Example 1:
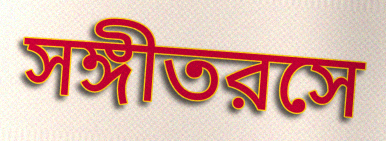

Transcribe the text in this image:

সঙ্গীতরসে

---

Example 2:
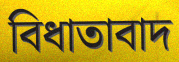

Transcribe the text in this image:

বিধাতাবাদ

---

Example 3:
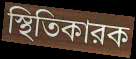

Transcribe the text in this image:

স্থিতিকারক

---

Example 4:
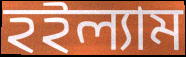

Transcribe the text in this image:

হইল্যাম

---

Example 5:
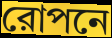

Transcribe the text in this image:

রোপনে